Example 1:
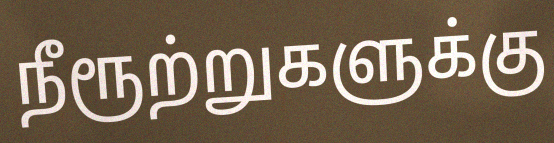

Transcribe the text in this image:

நீரூற்றுகளுக்கு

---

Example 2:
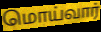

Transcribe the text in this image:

மொய்வார்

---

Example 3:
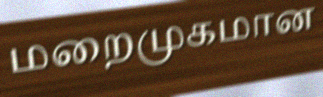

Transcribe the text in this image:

மறைமுகமான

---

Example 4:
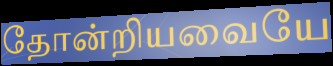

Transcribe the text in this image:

தோன்றியவையே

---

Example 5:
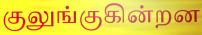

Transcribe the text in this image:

குலுங்குகின்றன